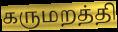
கருமறத்தி